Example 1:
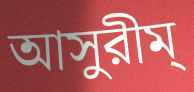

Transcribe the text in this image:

আসুরীম্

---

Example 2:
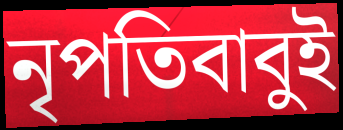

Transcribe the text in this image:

নৃপতিবাবুই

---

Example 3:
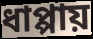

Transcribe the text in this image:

ধাপ্পায়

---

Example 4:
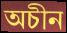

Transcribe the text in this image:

অচীন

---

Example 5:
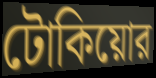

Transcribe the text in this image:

টোকিয়োর